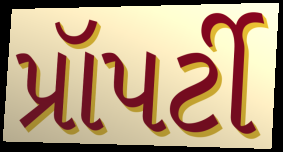
પ્રૉપર્ટી